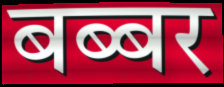
बब्बर